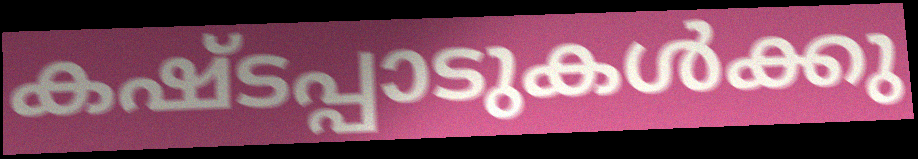
കഷ്ടപ്പാടുകൾക്കു